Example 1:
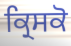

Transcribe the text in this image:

ਕ੍ਰਿਸਕੋ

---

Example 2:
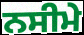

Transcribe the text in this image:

ਨਸੀਮੇ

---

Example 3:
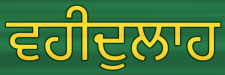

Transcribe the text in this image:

ਵਹੀਦੁਲਾਹ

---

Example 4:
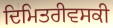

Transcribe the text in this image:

ਦਿਮਿਤਰੀਵਸਕੀ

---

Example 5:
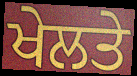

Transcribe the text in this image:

ਖੇਲਤੇ